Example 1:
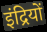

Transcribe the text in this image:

इंद्रियों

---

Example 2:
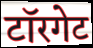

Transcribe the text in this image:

टॉरगेट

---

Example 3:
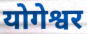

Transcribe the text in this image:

योगेश्वर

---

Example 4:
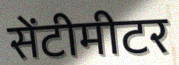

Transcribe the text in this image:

सेंटीमीटर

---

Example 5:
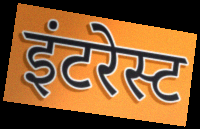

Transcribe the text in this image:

इंटरेस्ट